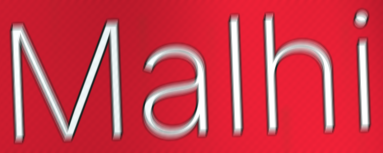
Malhi